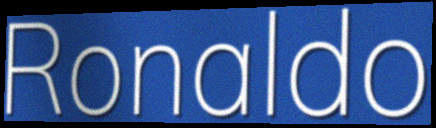
Ronaldo